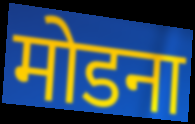
मोडना